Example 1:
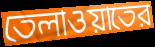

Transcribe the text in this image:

তেলাওয়াতের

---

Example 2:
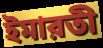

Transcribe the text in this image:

ইমারতী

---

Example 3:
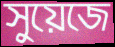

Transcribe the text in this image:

সুয়েজে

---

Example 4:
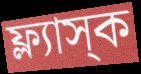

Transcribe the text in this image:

ফ্ল্যাস্‌ক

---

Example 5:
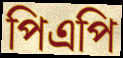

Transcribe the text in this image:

পিএপি